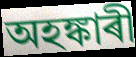
অহঙ্কাৰী